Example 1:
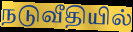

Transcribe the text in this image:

நடுவீதியில்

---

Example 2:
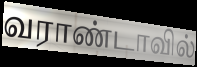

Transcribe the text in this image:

வராண்டாவில்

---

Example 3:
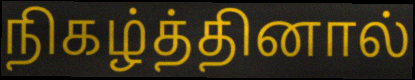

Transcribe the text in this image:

நிகழ்த்தினால்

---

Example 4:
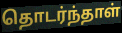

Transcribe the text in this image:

தொடர்ந்தாள்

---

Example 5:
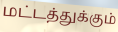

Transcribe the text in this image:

மட்டத்துக்கும்